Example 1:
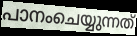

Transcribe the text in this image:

പാനംചെയ്യുന്നത്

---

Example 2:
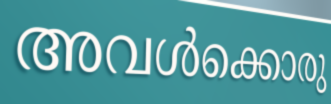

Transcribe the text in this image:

അവൾക്കൊരു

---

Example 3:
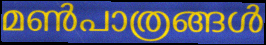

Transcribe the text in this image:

മൺപാത്രങ്ങൾ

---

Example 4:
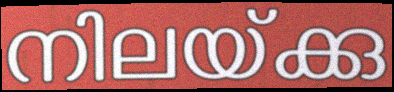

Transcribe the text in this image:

നിലയ്‌ക്കു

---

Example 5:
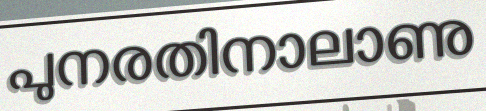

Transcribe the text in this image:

പുനരതിനാലാണു